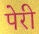
पेरी